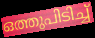
ഒത്തുപിടിച്ച്